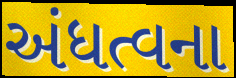
અંધત્વના